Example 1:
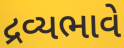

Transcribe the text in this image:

દ્રવ્યભાવે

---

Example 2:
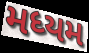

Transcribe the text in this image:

મધ્યમ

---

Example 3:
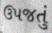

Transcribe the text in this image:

ઉપજતું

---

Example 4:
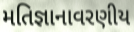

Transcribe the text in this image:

મતિજ્ઞાનાવરણીય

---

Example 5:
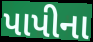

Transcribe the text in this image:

પાપીના